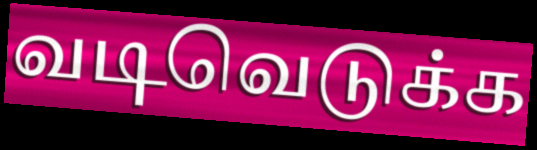
வடிவெடுக்க